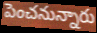
పెంచనున్నారు